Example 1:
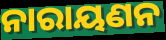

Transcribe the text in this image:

ନାରାୟଣନ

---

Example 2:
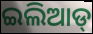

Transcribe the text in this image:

ଇଲିଆଡ୍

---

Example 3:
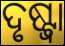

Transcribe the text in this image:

ଦୃଷ୍ଟ୍ବା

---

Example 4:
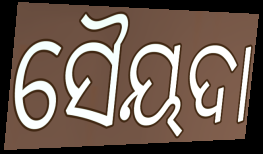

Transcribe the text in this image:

ସୈୟଦା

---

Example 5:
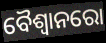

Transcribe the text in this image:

ବୈଶ୍ୱାନରୋ